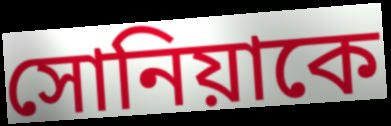
সোনিয়াকে